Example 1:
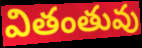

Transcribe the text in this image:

వితంతువు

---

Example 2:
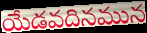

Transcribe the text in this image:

యేడవదినమున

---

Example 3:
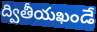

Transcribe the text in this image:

ద్వితీయఖండే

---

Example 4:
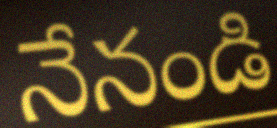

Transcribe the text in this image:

నేనండి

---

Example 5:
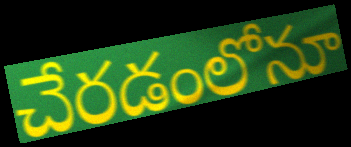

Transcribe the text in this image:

చేరడంలోనూ